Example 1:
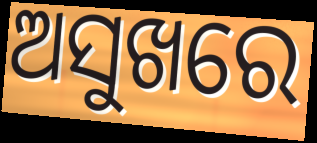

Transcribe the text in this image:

ଅସୁଖରେ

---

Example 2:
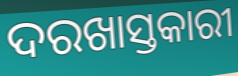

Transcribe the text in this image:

ଦରଖାସ୍ତକାରୀ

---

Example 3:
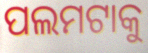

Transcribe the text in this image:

ପଲମଟାକୁ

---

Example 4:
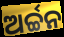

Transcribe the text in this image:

ଅର୍ଚ୍ଚନ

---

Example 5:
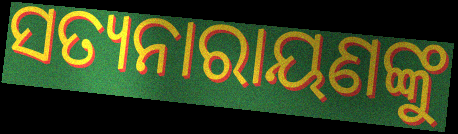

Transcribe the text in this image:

ସତ୍ୟନାରାୟଣଙ୍କୁ